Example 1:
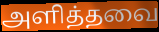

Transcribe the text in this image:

அளித்தவை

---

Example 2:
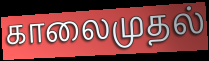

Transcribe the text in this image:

காலைமுதல்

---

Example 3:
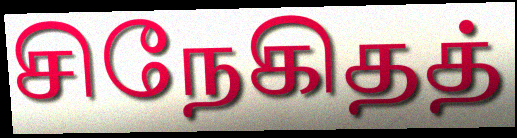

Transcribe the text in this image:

சிநேகிதத்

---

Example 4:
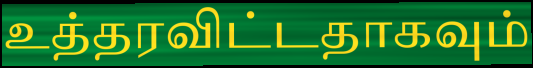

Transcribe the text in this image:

உத்தரவிட்டதாகவும்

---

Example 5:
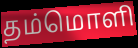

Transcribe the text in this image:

தம்மொளி